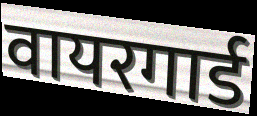
वायरगार्ड